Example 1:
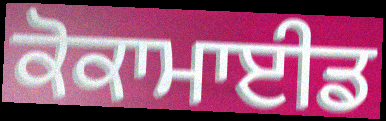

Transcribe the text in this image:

ਕੋਕਾਮਾਈਡ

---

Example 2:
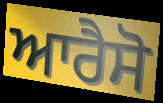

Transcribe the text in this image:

ਆਰੈਸੋ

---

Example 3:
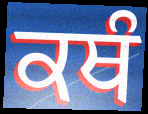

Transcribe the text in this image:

ਕਥੰ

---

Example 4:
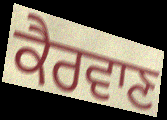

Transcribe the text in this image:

ਕੈਰਵਾਣ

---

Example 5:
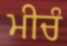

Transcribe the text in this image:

ਮੀਚੰ